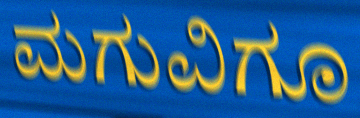
ಮಗುವಿಗೂ